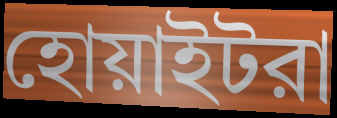
হোয়াইটরা